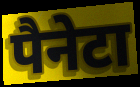
पैनेटा